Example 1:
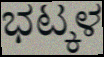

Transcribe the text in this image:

ಭಟ್ಕಳ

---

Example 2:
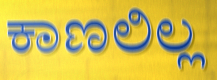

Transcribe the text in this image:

ಕಾಣಲಿಲ್ಲ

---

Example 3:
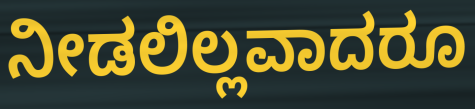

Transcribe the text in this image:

ನೀಡಲಿಲ್ಲವಾದರೂ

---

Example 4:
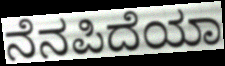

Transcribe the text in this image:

ನೆನಪಿದೆಯಾ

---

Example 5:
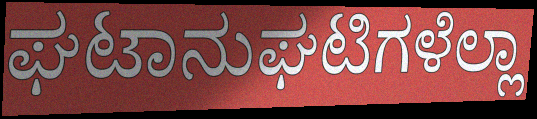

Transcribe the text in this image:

ಘಟಾನುಘಟಿಗಳೆಲ್ಲಾ